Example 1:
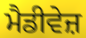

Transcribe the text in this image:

ਮੈਡੀਵੇਜ਼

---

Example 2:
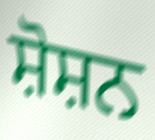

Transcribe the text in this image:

ਸ਼ੋਸ਼ਨ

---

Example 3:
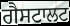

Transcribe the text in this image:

ਗੈਸਟਾਲਟ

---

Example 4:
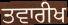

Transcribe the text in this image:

ਤਵਾਰੀਖ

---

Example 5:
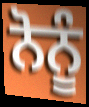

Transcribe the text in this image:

ਨੋਨੂੰ